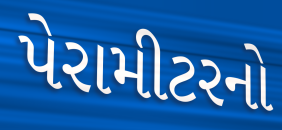
પેરામીટરનો